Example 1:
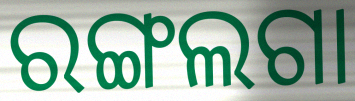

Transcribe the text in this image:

ରଙ୍ଗଲଗା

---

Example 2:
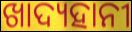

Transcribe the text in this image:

ଖାଦ୍ୟହାନୀ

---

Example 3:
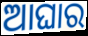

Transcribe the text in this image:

ଆଘାର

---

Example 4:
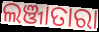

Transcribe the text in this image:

ଲଞ୍ଜାତାରା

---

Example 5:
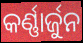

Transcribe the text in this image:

କର୍ଣ୍ଣାର୍ଜୁନ